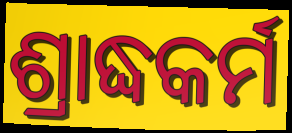
ଶ୍ରାଦ୍ଧକର୍ମ